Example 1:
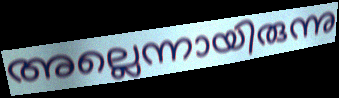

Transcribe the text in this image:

അല്ലെന്നായിരുന്നു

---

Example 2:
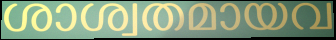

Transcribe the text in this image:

ശാശ്വതമായവ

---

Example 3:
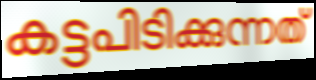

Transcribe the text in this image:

കട്ടപിടിക്കുന്നത്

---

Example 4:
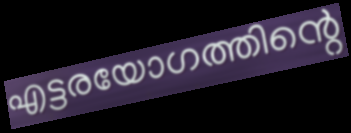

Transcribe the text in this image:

എട്ടരയോഗത്തിന്റെ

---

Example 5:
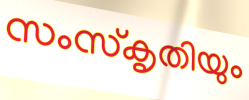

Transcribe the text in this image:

സംസ്കൃതിയും